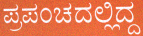
ಪ್ರಪಂಚದಲ್ಲಿದ್ದ